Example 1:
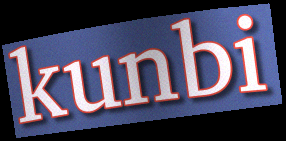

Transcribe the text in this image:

kunbi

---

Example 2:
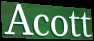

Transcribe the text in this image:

Acott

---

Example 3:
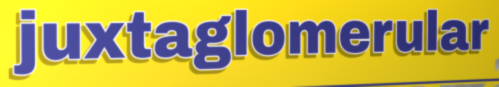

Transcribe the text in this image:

juxtaglomerular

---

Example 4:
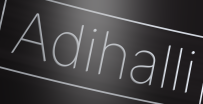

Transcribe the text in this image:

Adihalli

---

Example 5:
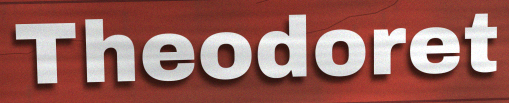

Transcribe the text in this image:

Theodoret